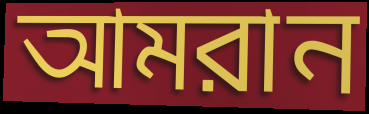
আমরান